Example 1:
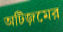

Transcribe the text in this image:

অটিজ়মের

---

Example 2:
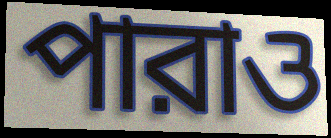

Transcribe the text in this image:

পারাও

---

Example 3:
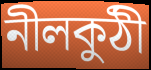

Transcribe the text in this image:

নীলকুঠী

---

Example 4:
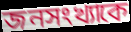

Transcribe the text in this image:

জনসংখ্যাকে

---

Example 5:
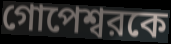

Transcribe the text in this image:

গোপেশ্বরকে